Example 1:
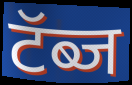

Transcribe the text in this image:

टॅब्ज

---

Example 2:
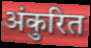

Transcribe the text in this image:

अंकुरित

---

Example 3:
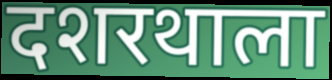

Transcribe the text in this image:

दशरथाला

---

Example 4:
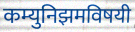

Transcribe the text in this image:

कम्युनिझमविषयी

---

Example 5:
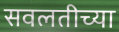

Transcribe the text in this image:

सवलतीच्या